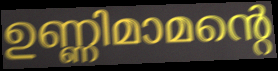
ഉണ്ണിമാമന്റെ